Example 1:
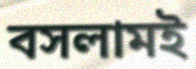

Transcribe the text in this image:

বসলামই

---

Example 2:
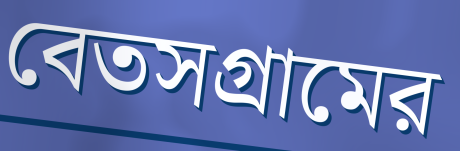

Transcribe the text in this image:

বেতসগ্রামের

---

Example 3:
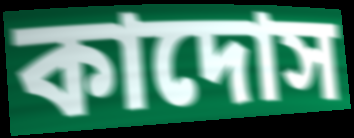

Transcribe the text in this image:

কাদোস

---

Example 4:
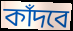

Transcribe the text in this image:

কাঁদবে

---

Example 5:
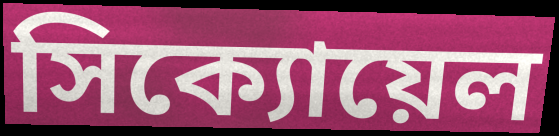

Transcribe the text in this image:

সিক্যোয়েল